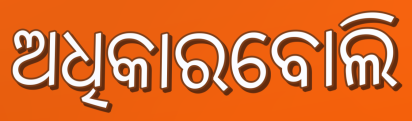
ଅଧିକାରବୋଲି